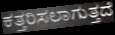
ಕತ್ತರಿಸಲಾಗುತ್ತದೆ